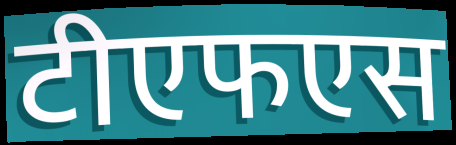
टीएफएस